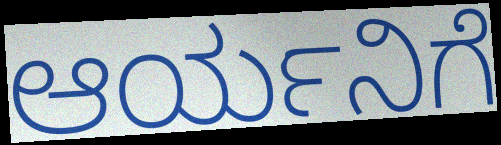
ಆರ್ಯನಿಗೆ